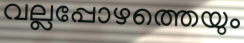
വല്ലപ്പോഴത്തെയും